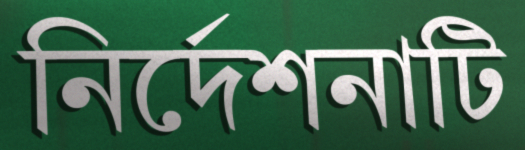
নির্দেশনাটি